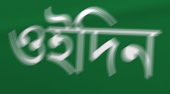
ওইদিন